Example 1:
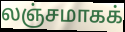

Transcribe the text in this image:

லஞ்சமாகக்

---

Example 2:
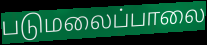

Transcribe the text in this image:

படுமலைப்பாலை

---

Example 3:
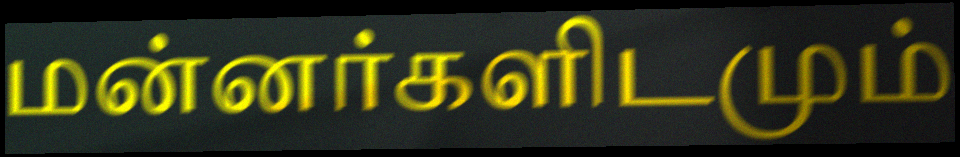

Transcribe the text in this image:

மன்னர்களிடமும்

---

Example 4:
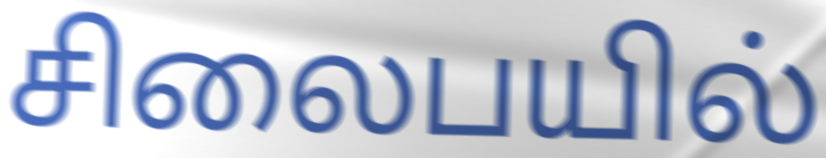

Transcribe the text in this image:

சிலைபயில்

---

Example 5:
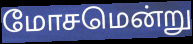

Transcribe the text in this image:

மோசமென்று